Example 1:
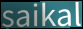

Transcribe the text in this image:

saikal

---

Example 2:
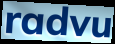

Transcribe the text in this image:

radvu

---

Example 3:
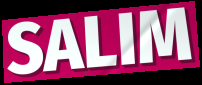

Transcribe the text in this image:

SALIM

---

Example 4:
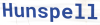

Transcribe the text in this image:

Hunspell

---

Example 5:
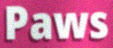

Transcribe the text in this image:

Paws